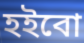
হইবো